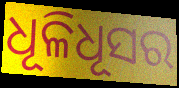
ଧୂଳିଧୂସର